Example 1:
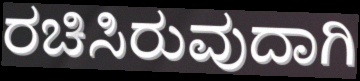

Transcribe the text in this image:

ರಚಿಸಿರುವುದಾಗಿ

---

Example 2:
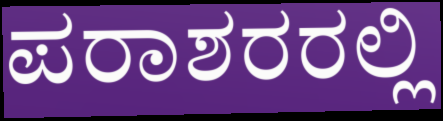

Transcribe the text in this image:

ಪರಾಶರರಲ್ಲಿ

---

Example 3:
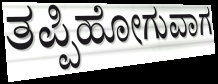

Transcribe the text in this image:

ತಪ್ಪಿಹೋಗುವಾಗ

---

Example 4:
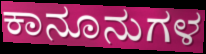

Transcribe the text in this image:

ಕಾನೂನುಗಳ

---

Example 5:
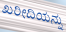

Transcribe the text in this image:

ಖರೀದಿಯನ್ನು